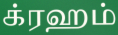
க்ரஹம்